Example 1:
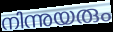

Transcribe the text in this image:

നിന്നുയരും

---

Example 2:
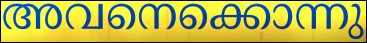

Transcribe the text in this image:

അവനെക്കൊന്നു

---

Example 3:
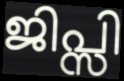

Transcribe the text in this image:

ജിപ്സി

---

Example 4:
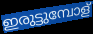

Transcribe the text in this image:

ഇരുട്ടുമ്പോള്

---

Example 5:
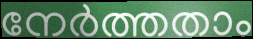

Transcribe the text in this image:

നേർത്തതാം